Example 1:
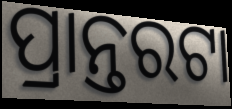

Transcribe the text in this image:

ପ୍ରାନ୍ତରଟା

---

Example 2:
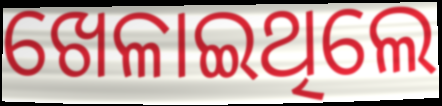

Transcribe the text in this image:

ଖେଳାଇଥିଲେ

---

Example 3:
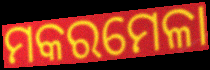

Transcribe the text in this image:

ମକରମେଳା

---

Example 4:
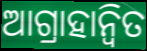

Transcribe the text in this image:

ଆଗ୍ରାହାନ୍ୱିତ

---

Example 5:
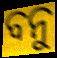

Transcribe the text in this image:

ବନୁ